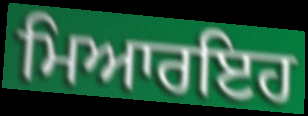
ਮਿਆਰਇਹ